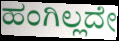
ಹಂಗಿಲ್ಲದೇ